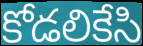
కోడలికేసి